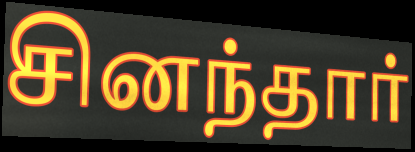
சினந்தார்